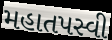
મહાતપસ્વી